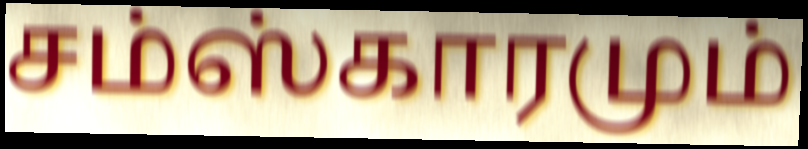
சம்ஸ்காரமும்